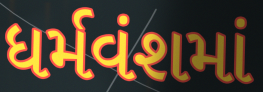
ધર્મવંશમાં